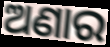
ଅଣାର